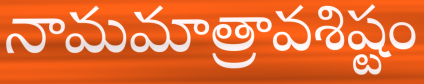
నామమాత్రావశిష్టం